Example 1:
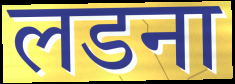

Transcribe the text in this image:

लडना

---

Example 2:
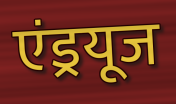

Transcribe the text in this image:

एंड्रयूज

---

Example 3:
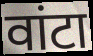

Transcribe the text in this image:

वांटा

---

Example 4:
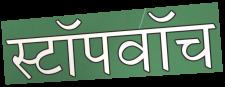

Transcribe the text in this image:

स्टॉपवॉच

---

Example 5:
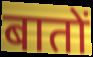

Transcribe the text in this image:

बातों